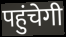
पहुंचेगी